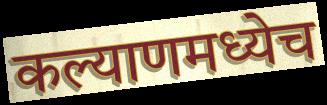
कल्याणमध्येच